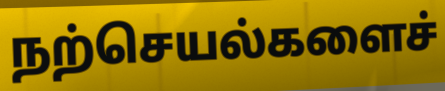
நற்செயல்களைச்